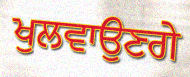
ਖੁਲਵਾਉਣਗੇ